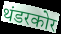
थंडरकोर